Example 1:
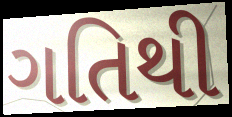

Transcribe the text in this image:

ગતિથી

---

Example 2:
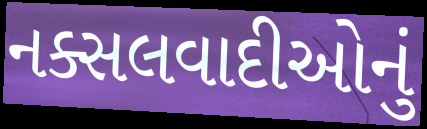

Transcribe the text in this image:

નક્સલવાદીઓનું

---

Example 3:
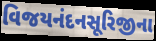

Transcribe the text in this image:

વિજયનંદનસૂરિજીના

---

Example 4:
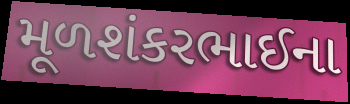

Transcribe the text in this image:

મૂળશંકરભાઈના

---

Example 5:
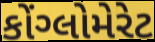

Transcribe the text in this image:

કોંગ્લોમેરેટ